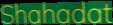
Shahadat